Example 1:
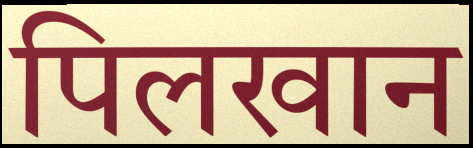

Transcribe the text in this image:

पिलखान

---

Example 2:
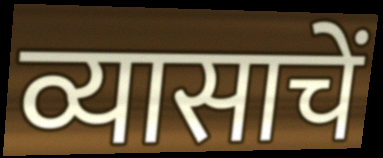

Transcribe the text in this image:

व्यासाचें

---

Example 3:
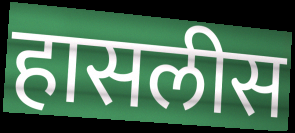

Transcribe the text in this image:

हासलीस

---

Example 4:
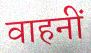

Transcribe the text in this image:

वाहनीं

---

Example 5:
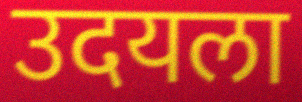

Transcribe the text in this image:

उदयला